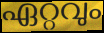
ഏറ്റവും